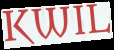
KWIL